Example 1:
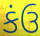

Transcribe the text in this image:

કંઉ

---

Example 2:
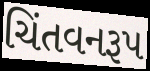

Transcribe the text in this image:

ચિંતવનરૂપ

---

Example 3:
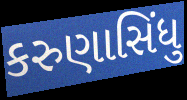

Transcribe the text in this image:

કરુણાસિંધુ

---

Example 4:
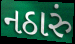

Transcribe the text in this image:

નઠારું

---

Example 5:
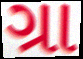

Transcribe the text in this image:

ગ્રા